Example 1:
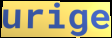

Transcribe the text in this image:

urige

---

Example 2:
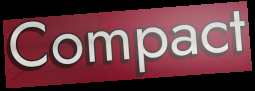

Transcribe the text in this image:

Compact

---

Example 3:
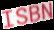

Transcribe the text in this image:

ISBN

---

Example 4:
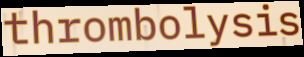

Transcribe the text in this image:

thrombolysis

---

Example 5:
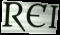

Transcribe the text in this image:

REI